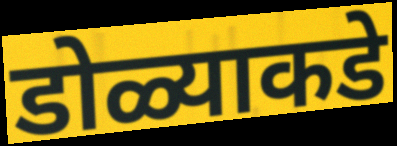
डोळ्याकडे